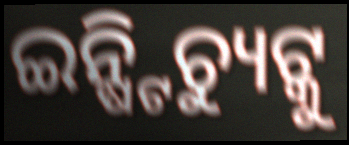
ଇନ୍ଷ୍ଟିଚ୍ୟୁଟ୍କୁ